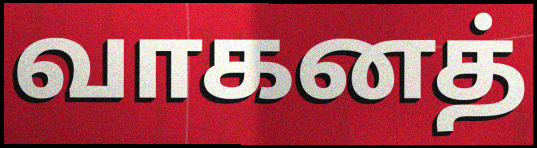
வாகனத்